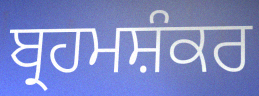
ਬ੍ਰਹਮਸ਼ੰਕਰ